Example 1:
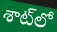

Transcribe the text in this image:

శాట్‌లో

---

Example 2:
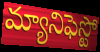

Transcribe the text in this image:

మ్యానిఫెస్టో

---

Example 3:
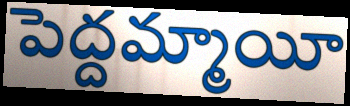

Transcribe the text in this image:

పెద్దమ్మాయీ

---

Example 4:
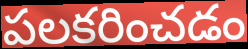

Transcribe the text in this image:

పలకరించడం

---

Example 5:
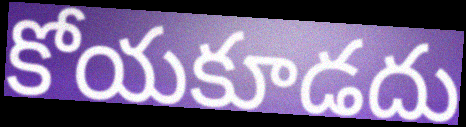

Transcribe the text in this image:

కోయకూడదు